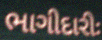
ભાગીદારીઃ